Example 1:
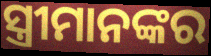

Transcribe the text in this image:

ସ୍ତ୍ରୀମାନଙ୍କର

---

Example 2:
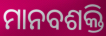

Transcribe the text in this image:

ମାନବଶକ୍ତି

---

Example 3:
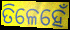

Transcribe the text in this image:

ତିଳେହେଁ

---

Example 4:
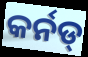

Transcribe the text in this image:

କର୍ନଡ୍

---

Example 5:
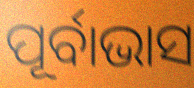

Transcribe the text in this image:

ପୂର୍ବାଭାସ